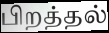
பிறத்தல்